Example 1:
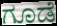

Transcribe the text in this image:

ಗೂಡೆ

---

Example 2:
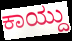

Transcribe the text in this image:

ಕಾಯ್ದು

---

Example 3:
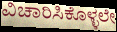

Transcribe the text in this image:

ವಿಚಾರಿಸಿಕೊಳ್ಳಲೇ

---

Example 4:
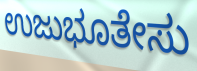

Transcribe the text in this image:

ಉಜುಭೂತೇಸು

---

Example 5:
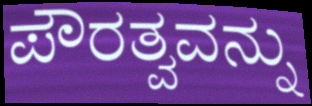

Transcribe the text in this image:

ಪೌರತ್ವವನ್ನು